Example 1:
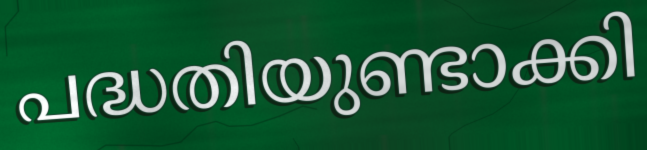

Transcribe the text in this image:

പദ്ധതിയുണ്ടാക്കി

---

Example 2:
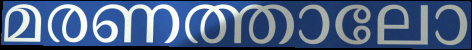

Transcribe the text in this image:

മരണത്താലോ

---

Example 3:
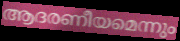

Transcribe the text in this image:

ആദരണീയമെന്നും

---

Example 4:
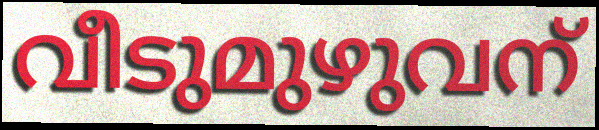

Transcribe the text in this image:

വീടുമുഴുവന്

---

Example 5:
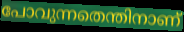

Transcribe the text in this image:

പോവുന്നതെന്തിനാണ്